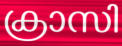
ക്രാസി